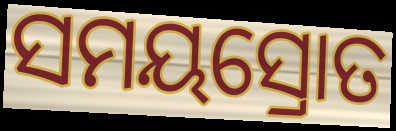
ସମୟସ୍ରୋତ